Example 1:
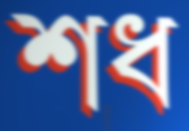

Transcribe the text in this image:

শধ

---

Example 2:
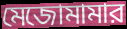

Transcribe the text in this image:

মেজোমামার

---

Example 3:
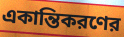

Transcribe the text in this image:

একান্তিকরণের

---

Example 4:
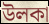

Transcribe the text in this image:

উলকা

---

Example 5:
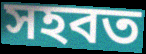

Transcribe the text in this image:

সহবত